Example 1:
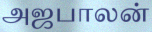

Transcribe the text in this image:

அஜபாலன்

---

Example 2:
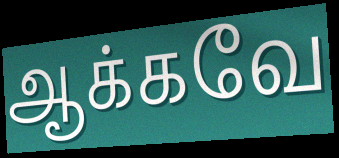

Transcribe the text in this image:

ஆக்கவே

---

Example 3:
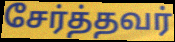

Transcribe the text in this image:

சேர்த்தவர்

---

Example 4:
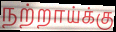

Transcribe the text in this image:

நற்றாய்க்கு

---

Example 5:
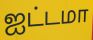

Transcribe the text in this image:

ஐட்டமா